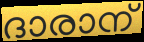
ദാരാന്